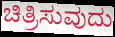
ಚಿತ್ರಿಸುವುದು